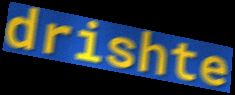
drishte